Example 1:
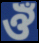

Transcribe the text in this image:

ঔঁ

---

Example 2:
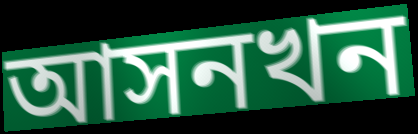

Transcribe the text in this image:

আসনখন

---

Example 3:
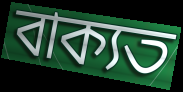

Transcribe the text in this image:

বাক্যত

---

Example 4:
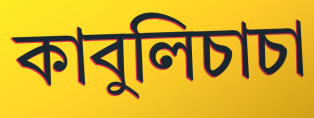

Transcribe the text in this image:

কাবুলিচাচা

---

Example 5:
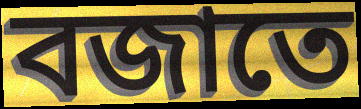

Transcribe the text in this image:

বজাতে